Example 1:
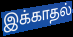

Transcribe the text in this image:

இக்காதல்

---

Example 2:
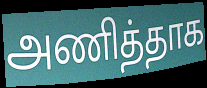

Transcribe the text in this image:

அணித்தாக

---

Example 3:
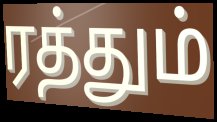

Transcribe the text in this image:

ரத்தும்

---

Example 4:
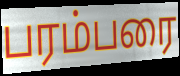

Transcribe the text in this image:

பரம்பரை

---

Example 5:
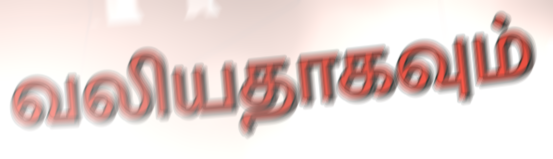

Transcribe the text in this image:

வலியதாகவும்